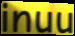
inuu